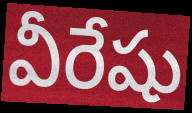
వీరేషు